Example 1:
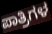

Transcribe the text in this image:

ಪಾತ್ರಿಗಳ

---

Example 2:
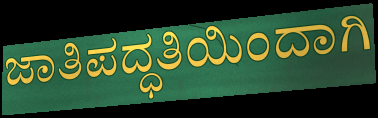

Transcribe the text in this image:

ಜಾತಿಪದ್ಧತಿಯಿಂದಾಗಿ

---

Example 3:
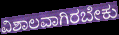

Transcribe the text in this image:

ವಿಶಾಲವಾಗಿರಬೇಕು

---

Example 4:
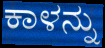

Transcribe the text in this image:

ಕಾಳನ್ನು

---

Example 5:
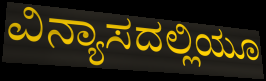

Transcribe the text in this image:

ವಿನ್ಯಾಸದಲ್ಲಿಯೂ